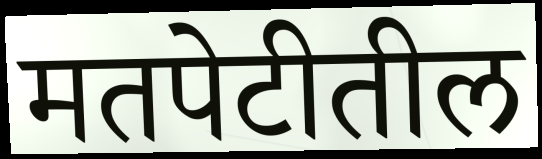
मतपेटीतील